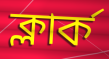
ক্লাৰ্ক